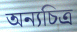
অন্যচিত্র